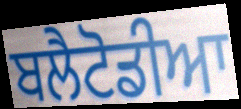
ਬਲੈਟੋਡੀਆ